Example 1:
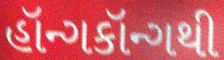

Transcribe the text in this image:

હૉન્ગકૉન્ગથી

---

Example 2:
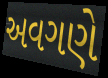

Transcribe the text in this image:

અવગણે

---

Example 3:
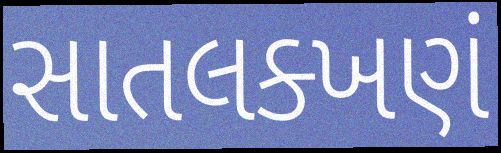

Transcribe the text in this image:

સાતલક્ખણં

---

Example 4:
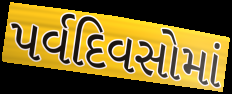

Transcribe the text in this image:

પર્વદિવસોમાં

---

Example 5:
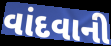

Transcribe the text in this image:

વાંદવાની